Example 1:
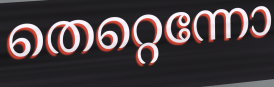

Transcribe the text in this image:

തെറ്റെന്നോ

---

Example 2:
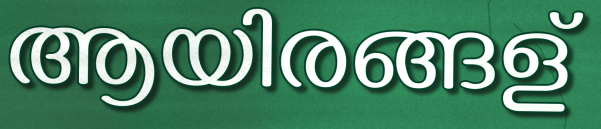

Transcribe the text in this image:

ആയിരങ്ങള്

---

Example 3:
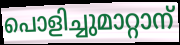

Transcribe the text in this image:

പൊളിച്ചുമാറ്റാന്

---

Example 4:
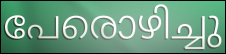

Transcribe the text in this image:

പേരൊഴിച്ചു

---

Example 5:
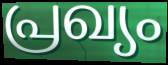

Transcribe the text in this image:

പ്രഖ്യം